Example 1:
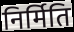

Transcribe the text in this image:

निर्मिति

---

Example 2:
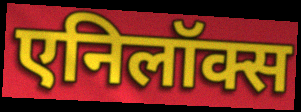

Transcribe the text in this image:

एनिलॉक्स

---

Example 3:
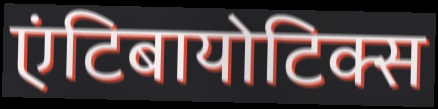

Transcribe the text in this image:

एंटिबायोटिक्स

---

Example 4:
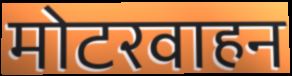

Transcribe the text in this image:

मोटरवाहन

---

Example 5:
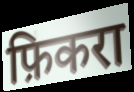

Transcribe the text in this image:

फ़िकरा